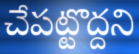
చేపట్టొద్దని